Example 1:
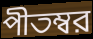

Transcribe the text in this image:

পীতম্বর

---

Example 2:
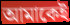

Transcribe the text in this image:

আমাকেই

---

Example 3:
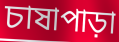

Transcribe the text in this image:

চাষাপাড়া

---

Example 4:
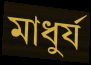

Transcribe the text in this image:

মাধুর্য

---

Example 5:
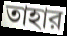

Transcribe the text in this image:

তাহার